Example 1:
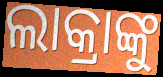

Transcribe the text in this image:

ଲାକ୍ରାଙ୍କୁ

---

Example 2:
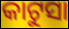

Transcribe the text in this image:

କାଟୁସା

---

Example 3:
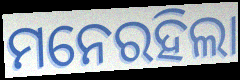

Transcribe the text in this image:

ମନେରହିଲା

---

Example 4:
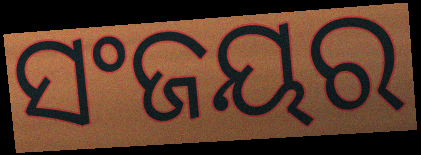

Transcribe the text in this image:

ସଂଜୟର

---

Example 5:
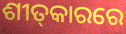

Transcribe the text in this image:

ଶୀତ୍‌କାରରେ